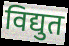
विद्युत